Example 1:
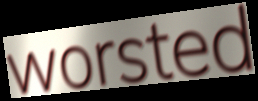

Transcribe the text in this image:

worsted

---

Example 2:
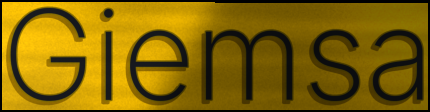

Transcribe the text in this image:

Giemsa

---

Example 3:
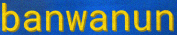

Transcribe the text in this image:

banwanun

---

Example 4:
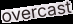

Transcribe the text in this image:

overcast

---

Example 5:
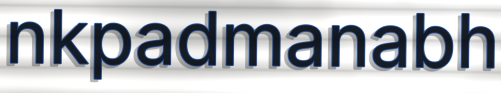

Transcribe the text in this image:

nkpadmanabh